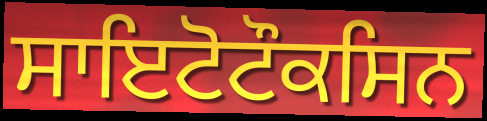
ਸਾਇਟੋਟੌਕਸਿਨ